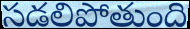
సడలిపోతుంది